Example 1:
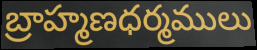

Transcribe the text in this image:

బ్రాహ్మణధర్మములు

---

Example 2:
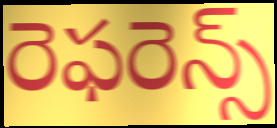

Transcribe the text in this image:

రెఫరెన్స్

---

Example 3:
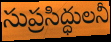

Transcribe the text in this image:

సుప్రసిద్ధులనీ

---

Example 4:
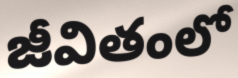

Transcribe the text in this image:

జీవితంలో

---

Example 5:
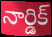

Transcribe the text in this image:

నార్డిక్